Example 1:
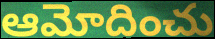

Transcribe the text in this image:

ఆమోదించు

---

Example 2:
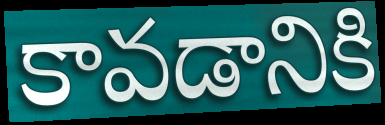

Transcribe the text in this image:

కావడానికి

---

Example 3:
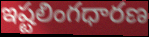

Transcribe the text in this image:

ఇష్టలింగధారణ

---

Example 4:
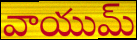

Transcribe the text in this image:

వాయుమ్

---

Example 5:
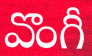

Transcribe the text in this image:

వొంగీ